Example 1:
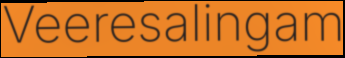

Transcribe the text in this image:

Veeresalingam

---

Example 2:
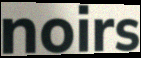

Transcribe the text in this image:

noirs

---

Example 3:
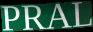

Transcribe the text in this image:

PRAL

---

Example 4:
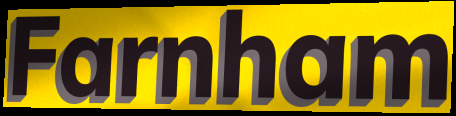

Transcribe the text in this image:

Farnham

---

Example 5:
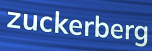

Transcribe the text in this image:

zuckerberg